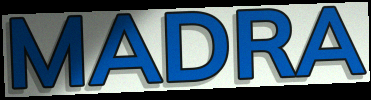
MADRA